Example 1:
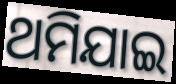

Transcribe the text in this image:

ଥମିଯାଇ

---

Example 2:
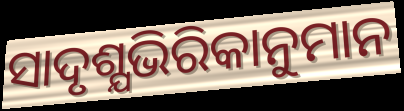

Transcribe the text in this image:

ସାଦୃଶ୍ଯଭିରିକାନୁମାନ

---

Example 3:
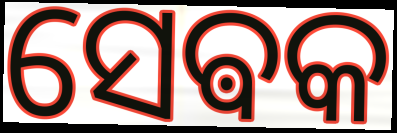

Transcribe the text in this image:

ସେଵକ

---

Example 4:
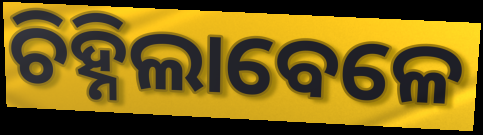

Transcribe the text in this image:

ଚିହ୍ନିଲାବେଳେ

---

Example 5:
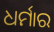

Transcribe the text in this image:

ଧର୍ମାର